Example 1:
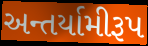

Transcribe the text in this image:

અન્તર્યામીરૂપ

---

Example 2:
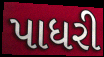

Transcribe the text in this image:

પાધરી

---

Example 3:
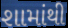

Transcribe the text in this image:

શામાંથી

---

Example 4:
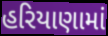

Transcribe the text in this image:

હરિયાણામાં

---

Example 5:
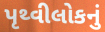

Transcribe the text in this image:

પૃથ્વીલોકનું